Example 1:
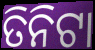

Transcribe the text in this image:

ତିନିଟା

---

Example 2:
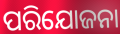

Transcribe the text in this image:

ପରିଯୋଜନା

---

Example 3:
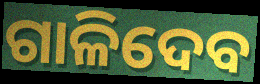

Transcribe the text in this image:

ଗାଳିଦେବ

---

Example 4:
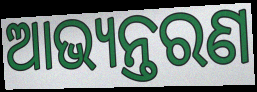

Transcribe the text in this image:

ଆଭ୍ୟନ୍ତରଣ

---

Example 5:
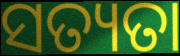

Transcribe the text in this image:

ସତ୍ୟତା